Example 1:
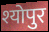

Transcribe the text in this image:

श्‍योपुर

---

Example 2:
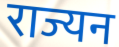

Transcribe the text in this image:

राज्यन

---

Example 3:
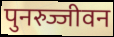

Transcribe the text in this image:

पुनरुज्जीवन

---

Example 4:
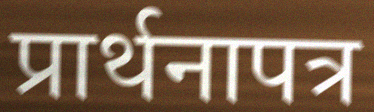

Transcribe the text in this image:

प्रार्थनापत्र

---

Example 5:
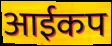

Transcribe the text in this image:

आईकप